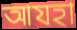
আযহা